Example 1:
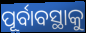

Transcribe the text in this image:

ପୂର୍ବାବସ୍ଥାକୁ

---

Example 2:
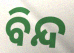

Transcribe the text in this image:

ବିନ୍ଦ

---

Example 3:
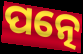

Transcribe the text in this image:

ପତ୍ନେ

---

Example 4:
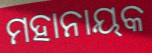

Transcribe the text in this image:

ମହାନାୟକ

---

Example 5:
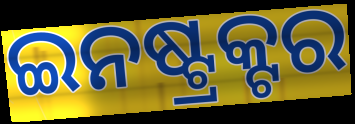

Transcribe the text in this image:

ଇନଷ୍ଟ୍ରକ୍ଟର